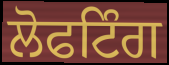
ਲੋਫਟਿੰਗ